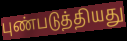
புண்படுத்தியது